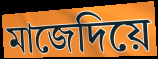
মাজেদিয়ে